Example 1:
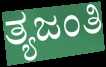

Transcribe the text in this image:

ತ್ಯಜಂತಿ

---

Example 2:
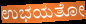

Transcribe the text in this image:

ಉಭಯತೋ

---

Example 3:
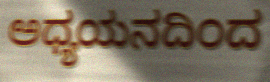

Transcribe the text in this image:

ಅಧ್ಯಯನದಿಂದ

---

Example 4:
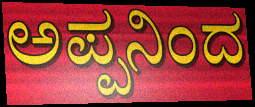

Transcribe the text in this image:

ಅಪ್ಪನಿಂದ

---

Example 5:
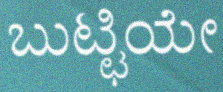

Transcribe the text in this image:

ಬುಟ್ಟಿಯೇ